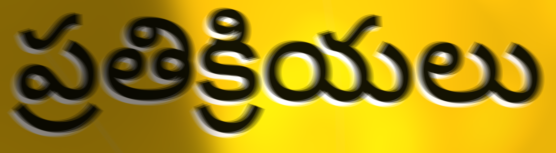
ప్రతిక్రియలు